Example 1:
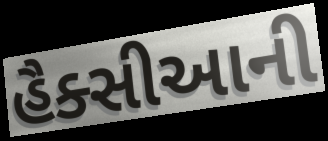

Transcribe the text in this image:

હૈક્સીઆની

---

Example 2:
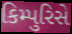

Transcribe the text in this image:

કિમ્પુરિસે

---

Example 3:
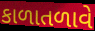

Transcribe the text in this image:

કાળાતળાવે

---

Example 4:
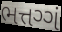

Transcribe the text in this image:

ભત્તગ્ગં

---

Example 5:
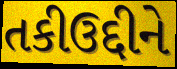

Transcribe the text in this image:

તકીઉદ્દીને